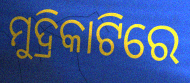
ମୁଦ୍ରିକାଟିରେ